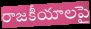
రాజకీయాలపై